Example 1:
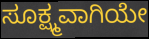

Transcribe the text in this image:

ಸೂಕ್ಷ್ಮವಾಗಿಯೇ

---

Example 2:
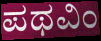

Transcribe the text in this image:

ಪಥವಿಂ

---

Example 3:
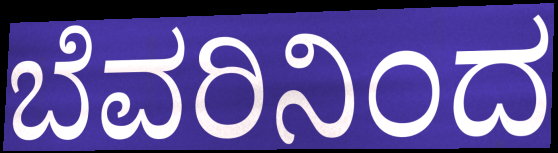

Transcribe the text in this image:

ಬೆವರಿನಿಂದ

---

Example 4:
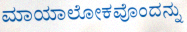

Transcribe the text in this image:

ಮಾಯಾಲೋಕವೊಂದನ್ನು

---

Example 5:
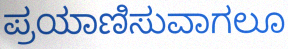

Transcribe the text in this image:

ಪ್ರಯಾಣಿಸುವಾಗಲೂ